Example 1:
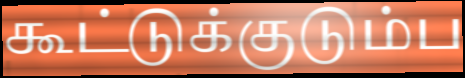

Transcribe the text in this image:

கூட்டுக்குடும்ப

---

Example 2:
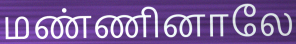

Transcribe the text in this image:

மண்ணினாலே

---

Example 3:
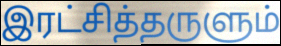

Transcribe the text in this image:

இரட்சித்தருளும்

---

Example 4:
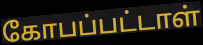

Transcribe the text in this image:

கோபப்பட்டாள்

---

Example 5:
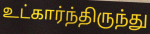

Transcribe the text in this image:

உட்கார்ந்திருந்து